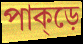
পাক্ড়ে